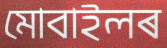
মোবাইলৰ